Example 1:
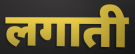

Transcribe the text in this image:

लगाती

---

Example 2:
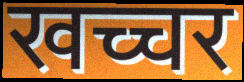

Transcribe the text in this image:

खच्चर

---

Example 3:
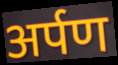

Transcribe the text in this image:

अर्पण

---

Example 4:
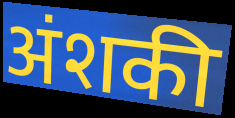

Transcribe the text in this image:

अंशकी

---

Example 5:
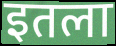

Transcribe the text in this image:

इतला